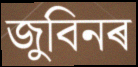
জুবিনৰ